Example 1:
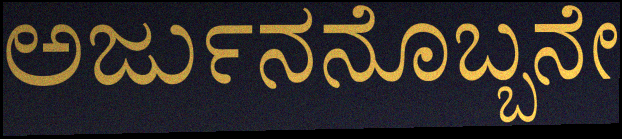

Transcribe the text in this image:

ಅರ್ಜುನನೊಬ್ಬನೇ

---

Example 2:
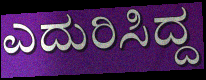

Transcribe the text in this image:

ಎದುರಿಸಿದ್ದ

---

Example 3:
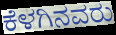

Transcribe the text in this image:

ಕೆಳಗಿನವರು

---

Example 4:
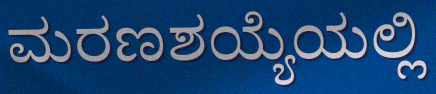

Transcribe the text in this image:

ಮರಣಶಯ್ಯೆಯಲ್ಲಿ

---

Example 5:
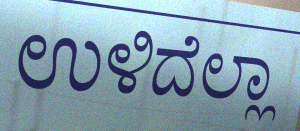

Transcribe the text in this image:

ಉಳಿದೆಲ್ಲಾ